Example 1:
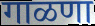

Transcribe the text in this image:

गाळणा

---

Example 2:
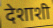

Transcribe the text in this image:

देशाशी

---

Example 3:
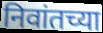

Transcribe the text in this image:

निवांतच्या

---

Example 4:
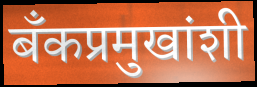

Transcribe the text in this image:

बँकप्रमुखांशी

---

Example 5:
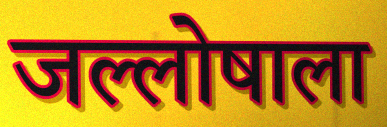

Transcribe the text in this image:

जल्लोषाला